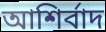
আশির্বাদ